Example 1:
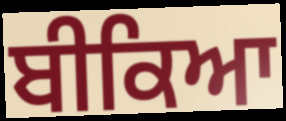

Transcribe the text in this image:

ਬੀਕਿਆ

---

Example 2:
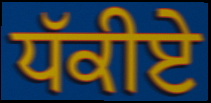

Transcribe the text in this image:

ਧੱਕੀਏ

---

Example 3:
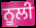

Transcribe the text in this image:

ਨੂਲੀ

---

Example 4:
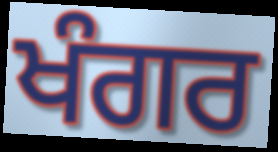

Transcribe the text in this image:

ਖੰਗਰ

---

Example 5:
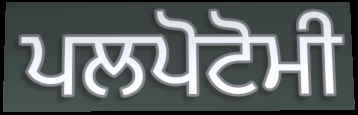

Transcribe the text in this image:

ਪਲਪੋਟੋਮੀ